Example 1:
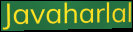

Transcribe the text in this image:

Javaharlal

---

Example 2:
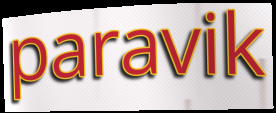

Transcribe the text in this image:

paravik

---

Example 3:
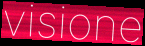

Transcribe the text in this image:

visione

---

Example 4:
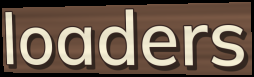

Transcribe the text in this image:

loaders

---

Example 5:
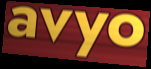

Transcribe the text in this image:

avyo